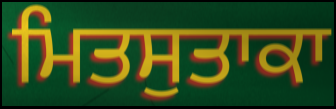
ਮਿਤਸੁਤਾਕਾ